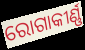
ରୋଗାକୀର୍ଣ୍ଣ